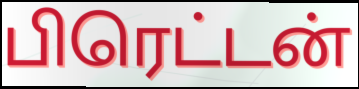
பிரெட்டன்